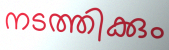
നടത്തിക്കും